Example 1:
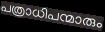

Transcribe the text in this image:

പത്രാധിപന്മാരും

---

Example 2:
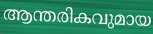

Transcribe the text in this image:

ആന്തരികവുമായ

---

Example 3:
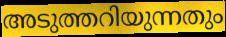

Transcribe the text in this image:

അടുത്തറിയുന്നതും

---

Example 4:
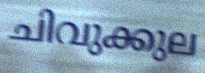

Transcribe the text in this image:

ചിവുക്കുല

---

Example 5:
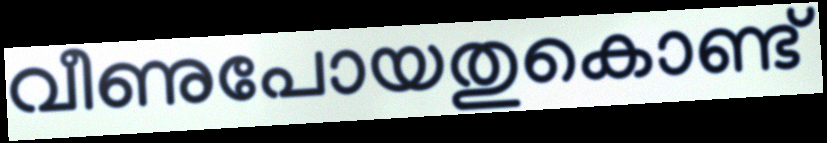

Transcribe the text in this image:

വീണുപോയതുകൊണ്ട്